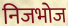
निजभोज